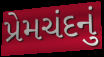
પ્રેમચંદનું